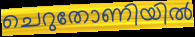
ചെറുതോണിയിൽ